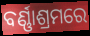
ବର୍ଣ୍ଣାଶ୍ରମରେ